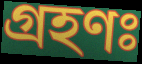
গ্রহণঃ